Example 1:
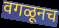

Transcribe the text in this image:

वगळूनच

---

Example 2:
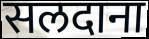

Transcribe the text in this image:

सलदाना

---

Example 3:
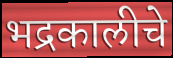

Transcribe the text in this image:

भद्रकालीचे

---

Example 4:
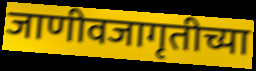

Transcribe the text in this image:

जाणीवजागृतीच्या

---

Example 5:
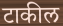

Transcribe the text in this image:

टाकील